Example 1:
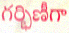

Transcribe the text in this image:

గర్భిణీగా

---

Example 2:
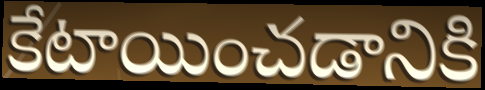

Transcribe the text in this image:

కేటాయించడానికి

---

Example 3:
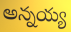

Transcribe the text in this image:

అన్నయ్య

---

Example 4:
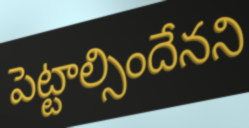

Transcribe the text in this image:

పెట్టాల్సిందేనని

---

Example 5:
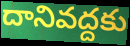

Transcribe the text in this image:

దానివద్దకు